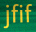
jfif